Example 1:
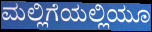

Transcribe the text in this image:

ಮಲ್ಲಿಗೆಯಲ್ಲಿಯೂ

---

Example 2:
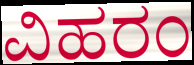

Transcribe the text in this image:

ವಿಹರಂ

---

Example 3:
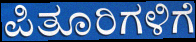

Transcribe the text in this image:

ಪಿತೂರಿಗಳಿಗೆ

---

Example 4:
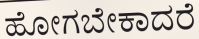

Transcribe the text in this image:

ಹೋಗಬೇಕಾದರೆ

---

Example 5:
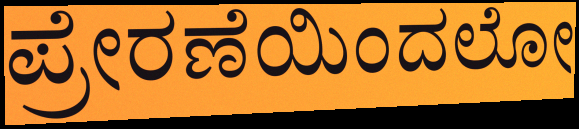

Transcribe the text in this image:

ಪ್ರೇರಣೆಯಿಂದಲೋ